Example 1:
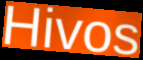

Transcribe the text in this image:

Hivos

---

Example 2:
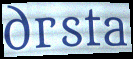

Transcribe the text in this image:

drsta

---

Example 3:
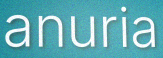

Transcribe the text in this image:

anuria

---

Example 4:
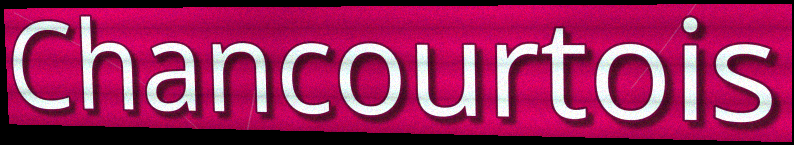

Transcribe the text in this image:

Chancourtois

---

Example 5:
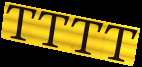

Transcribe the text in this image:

TTTT